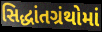
સિદ્ધાંતગ્રંથોમાં